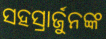
ସହସ୍ରାର୍ଜୁନଙ୍କ